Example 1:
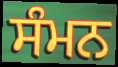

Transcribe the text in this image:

ਸੰਮਨ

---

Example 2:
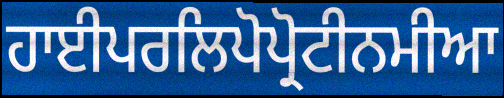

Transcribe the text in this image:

ਹਾਈਪਰਲਿਪੋਪ੍ਰੋਟੀਨਮੀਆ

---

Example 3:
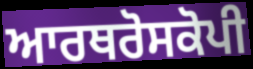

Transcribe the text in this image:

ਆਰਥਰੋਸਕੋਪੀ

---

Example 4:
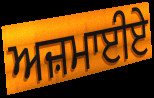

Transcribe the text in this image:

ਅਜ਼ਮਾਈਏ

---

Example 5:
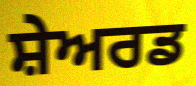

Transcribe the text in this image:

ਸ਼ੇਅਰਡ